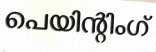
പെയിന്റിംഗ്